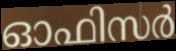
ഓഫിസർ